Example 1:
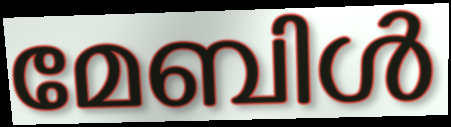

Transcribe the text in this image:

മേബിൾ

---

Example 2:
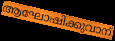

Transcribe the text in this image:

ആഘോഷിക്കുവാന്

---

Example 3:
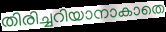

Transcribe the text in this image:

തിരിച്ചറിയാനാകാതെ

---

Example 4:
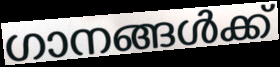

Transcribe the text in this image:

ഗാനങ്ങൾക്ക്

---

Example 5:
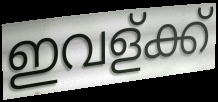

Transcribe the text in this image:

ഇവള്ക്ക്